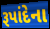
રૂપાંદેના